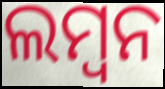
ଲମ୍ବନ